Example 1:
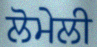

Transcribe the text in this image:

ਲੋਮੇਲੀ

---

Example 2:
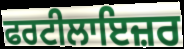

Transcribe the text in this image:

ਫਰਟੀਲਾਇਜ਼ਰ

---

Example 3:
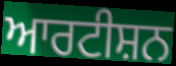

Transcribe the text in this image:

ਆਰਟੀਸ਼ਨ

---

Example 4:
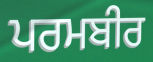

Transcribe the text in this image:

ਪਰਮਬੀਰ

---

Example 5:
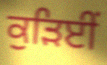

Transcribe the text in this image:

ਕੁੜਿਈਂ